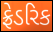
ફ્રેડરિક